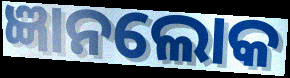
ଜ୍ଞାନଲୋକ